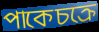
পাকেচক্রে